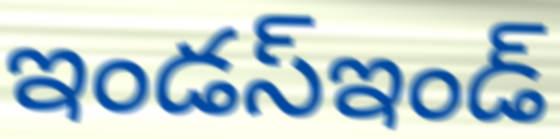
ఇండస్ఇండ్